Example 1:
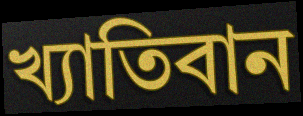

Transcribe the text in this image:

খ্যাতিবান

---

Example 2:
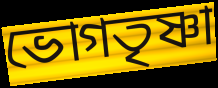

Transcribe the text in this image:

ভোগতৃষ্ণা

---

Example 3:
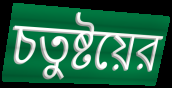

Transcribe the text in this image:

চতুষ্টয়ের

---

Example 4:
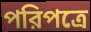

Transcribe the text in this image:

পরিপত্রে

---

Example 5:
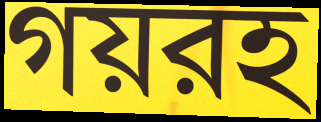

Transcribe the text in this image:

গয়রহ